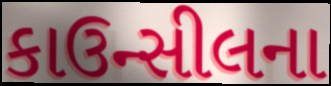
કાઉન્સીલના